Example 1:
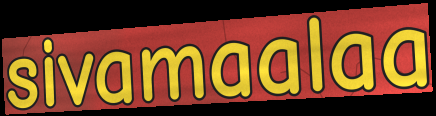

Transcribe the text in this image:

sivamaalaa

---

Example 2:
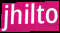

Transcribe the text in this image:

jhilto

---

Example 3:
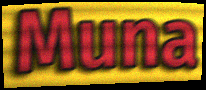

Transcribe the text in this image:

Muna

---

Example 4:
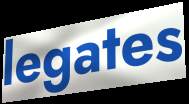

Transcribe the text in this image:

legates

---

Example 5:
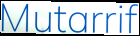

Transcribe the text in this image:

Mutarrif